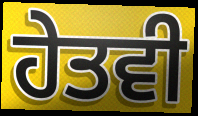
ਹੇਤਵੀ